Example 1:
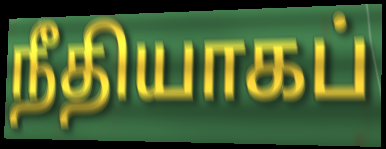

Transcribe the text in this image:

நீதியாகப்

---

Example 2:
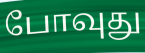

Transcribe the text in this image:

போவுது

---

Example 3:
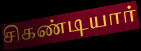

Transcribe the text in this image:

சிகண்டியார்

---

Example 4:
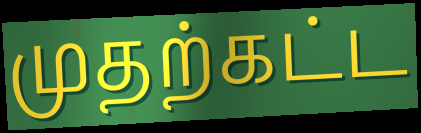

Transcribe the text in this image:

முதற்கட்ட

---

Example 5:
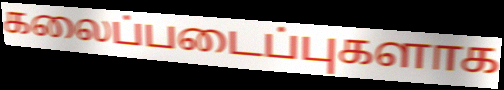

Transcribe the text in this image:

கலைப்படைப்புகளாக